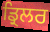
ਡ੍ਰਿਲਰ